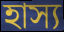
হাস্য